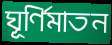
ঘূর্ণিমাতন